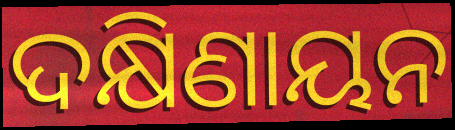
ଦକ୍ଷିଣାୟନ